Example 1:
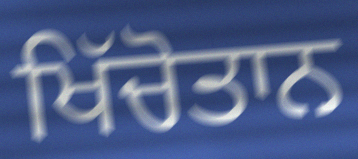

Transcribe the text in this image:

ਖਿੱਚੋਤਾਨ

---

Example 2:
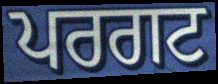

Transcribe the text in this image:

ਪਰਗਟ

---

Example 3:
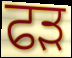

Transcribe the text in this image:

ਫੜ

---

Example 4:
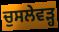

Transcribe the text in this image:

ਚੁਸਲੇਵੜ੍ਹ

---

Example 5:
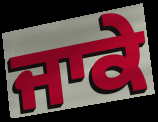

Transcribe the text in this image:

ਜਾਕੇ